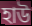
হাউ